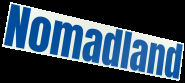
Nomadland